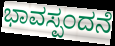
ಭಾವಸ್ಪಂದನೆ